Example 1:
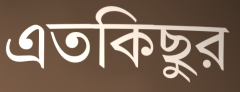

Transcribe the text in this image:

এতকিছুর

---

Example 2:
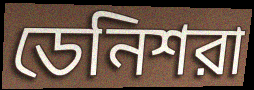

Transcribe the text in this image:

ডেনিশরা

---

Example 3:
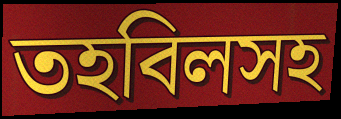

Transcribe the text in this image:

তহবিলসহ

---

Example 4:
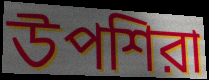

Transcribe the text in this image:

উপশিরা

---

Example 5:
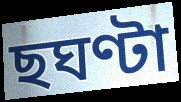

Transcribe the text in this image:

ছঘণ্টা